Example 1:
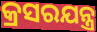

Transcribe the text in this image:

କ୍ରସରଯନ୍ତ୍ର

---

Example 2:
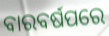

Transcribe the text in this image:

ବାରବର୍ଷପରେ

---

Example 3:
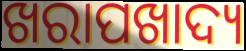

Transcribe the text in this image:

ଖରାପଖାଦ୍ୟ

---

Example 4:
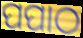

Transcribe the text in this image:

ପପାଠ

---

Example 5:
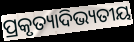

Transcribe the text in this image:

ପ୍ରକୃତ୍ୟାଦିଭ୍ୟତୀୟ